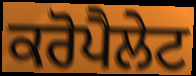
ਕਰੋਪੈਲੇਟ